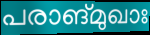
പരാങ്മുഖാഃ